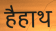
हैहाथ